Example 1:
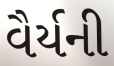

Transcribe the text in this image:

વૈર્યની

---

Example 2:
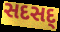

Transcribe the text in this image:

સદસદ્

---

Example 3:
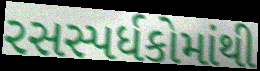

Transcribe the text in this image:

રસસ્પર્ધકોમાંથી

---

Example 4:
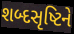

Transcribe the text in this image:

શબ્દસૃષ્ટિને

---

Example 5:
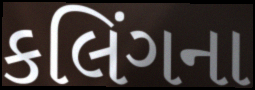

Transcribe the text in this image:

કલિંગના